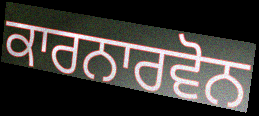
ਕਾਰਨਾਰਵੋਨ